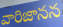
వారిజానన